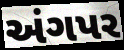
અંગપર